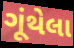
ગૂંથેલા